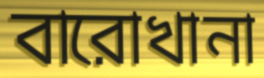
বারোখানা